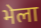
भेला